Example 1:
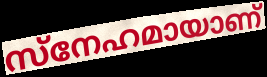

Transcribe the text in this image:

സ്നേഹമായാണ്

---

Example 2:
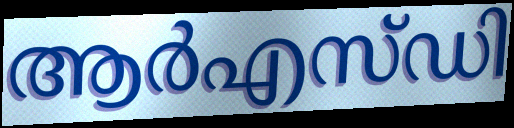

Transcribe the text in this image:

ആർഎസ്ഡി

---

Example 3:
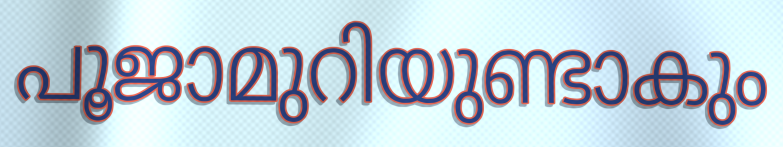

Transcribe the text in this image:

പൂജാമുറിയുണ്ടാകും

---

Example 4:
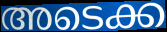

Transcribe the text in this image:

അടെക്ക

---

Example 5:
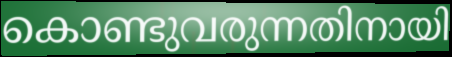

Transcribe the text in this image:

കൊണ്ടുവരുന്നതിനായി